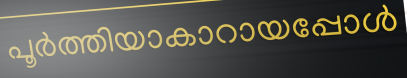
പൂർത്തിയാകാറായപ്പോൾ